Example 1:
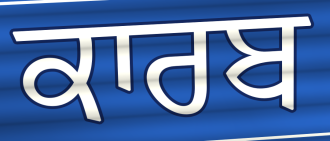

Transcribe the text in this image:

ਕਾਰਬ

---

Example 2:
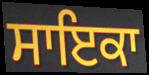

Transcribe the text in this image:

ਸਾਇਕਾ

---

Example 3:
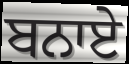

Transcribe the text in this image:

ਬਨਾਏ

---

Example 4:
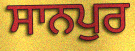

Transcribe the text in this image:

ਸਾਨਪੁਰ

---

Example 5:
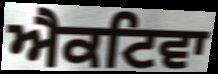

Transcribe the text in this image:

ਐਕਟਿਵਾ